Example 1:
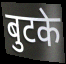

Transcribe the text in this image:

बुटके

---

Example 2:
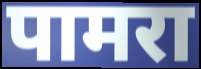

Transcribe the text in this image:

पामरा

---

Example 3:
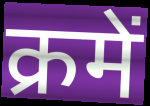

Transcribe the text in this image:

क्रमें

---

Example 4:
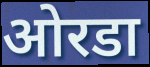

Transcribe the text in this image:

ओरडा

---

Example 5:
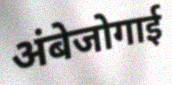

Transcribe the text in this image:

अंबेजोगाई